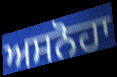
ਅਸਨੋਹਾ